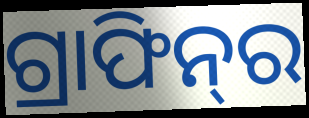
ଗ୍ରାଫିନ୍‌ର